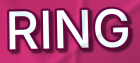
RING